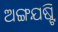
ଅଙ୍ଗଯଷ୍ଟି